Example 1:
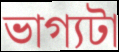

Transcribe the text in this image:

ভাগ্যটা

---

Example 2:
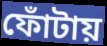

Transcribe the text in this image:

ফোঁটায়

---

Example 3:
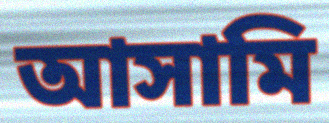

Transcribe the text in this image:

আসামি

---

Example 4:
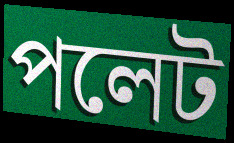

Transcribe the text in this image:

পলেট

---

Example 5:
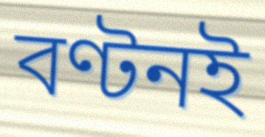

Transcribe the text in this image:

বণ্টনই